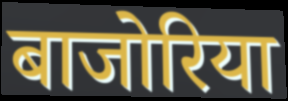
बाजोरिया